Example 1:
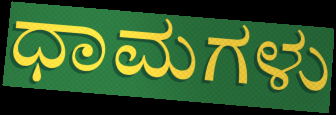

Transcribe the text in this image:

ಧಾಮಗಳು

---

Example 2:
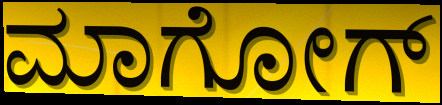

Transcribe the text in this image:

ಮಾಗೋಗ್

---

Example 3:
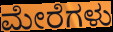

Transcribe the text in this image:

ಮೇರೆಗಳು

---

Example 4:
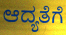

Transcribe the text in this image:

ಆದ್ಯತೆಗೆ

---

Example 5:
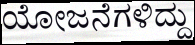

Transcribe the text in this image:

ಯೋಜನೆಗಳಿದ್ದು